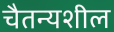
चैतन्यशील